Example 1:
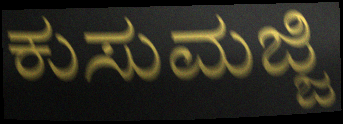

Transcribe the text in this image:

ಕುಸುಮಜ್ಜಿ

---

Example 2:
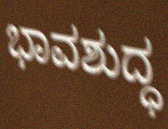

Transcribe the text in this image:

ಭಾವಶುದ್ಧ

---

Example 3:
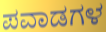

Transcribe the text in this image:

ಪವಾಡಗಳ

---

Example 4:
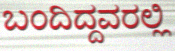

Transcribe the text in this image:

ಬಂದಿದ್ದವರಲ್ಲಿ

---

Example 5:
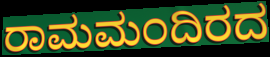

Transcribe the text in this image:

ರಾಮಮಂದಿರದ